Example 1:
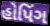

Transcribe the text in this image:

હોપિંગ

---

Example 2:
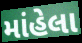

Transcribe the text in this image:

માંહેલા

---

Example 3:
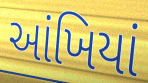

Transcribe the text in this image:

આંખિયાં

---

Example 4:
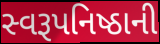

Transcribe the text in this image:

સ્વરૂપનિષ્ઠાની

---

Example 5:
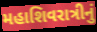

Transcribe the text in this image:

મહાશિવરાત્રીનું